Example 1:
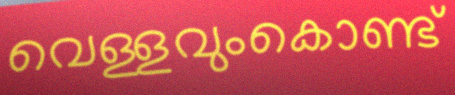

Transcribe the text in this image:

വെള്ളവുംകൊണ്ട്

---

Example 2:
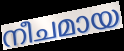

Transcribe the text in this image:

നീചമായ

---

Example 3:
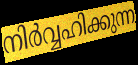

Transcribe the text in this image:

നിർവ്വഹിക്കുന്ന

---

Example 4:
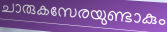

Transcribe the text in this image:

ചാരുകസേരയുണ്ടാകും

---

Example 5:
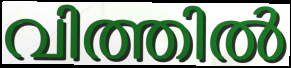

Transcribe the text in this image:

വിത്തിൽ